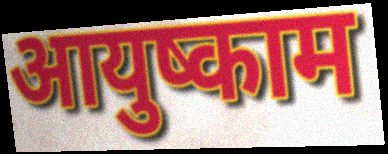
आयुष्काम